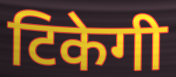
टिकेगी